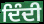
ਦਿੰਦੀ